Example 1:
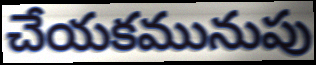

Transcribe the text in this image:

చేయకమునుపు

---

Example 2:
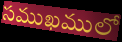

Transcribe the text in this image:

సముఖములో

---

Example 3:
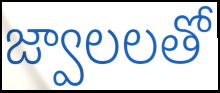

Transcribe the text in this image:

జ్వాలలతో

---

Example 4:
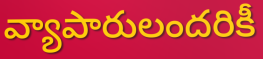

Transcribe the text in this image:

వ్యాపారులందరికీ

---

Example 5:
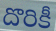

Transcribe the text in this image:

దొరికీ